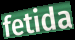
fetida